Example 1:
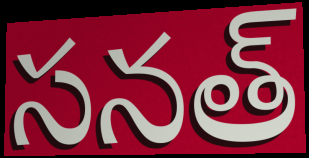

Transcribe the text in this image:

సనత్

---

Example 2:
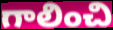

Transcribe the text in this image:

గాలించి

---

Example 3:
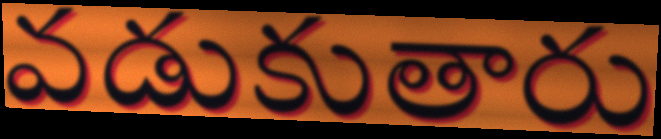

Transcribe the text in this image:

వడుకుతారు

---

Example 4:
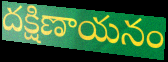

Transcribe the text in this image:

దక్షిణాయనం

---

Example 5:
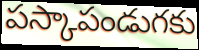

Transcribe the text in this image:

పస్కాపండుగకు